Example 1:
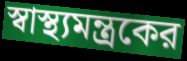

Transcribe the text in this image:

স্বাস্থ্যমন্ত্রকের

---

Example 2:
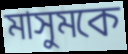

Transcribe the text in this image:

মাসুমকে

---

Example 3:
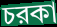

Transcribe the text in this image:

চরকা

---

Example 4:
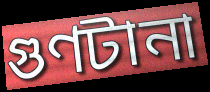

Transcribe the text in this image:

গুণটানা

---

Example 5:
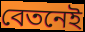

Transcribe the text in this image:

বেতনেই